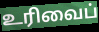
உரிவைப்